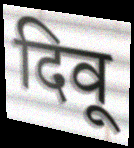
दिवू